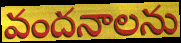
వందనాలను